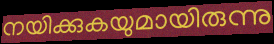
നയിക്കുകയുമായിരുന്നു